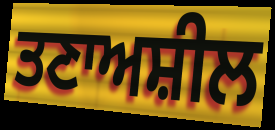
ਤਣਾਅਸ਼ੀਲ